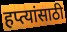
हप्त्यांसाठी